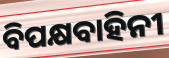
ବିପକ୍ଷବାହିନୀ